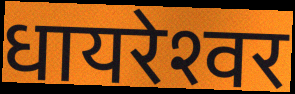
धायरेश्वर